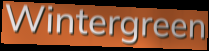
Wintergreen